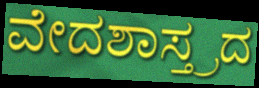
ವೇದಶಾಸ್ತ್ರದ